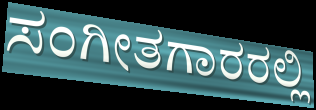
ಸಂಗೀತಗಾರರಲ್ಲಿ